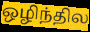
ஒழிந்தில